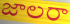
జాలరా